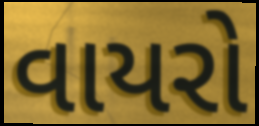
વાયરો